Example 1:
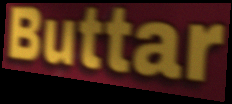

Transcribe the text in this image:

Buttar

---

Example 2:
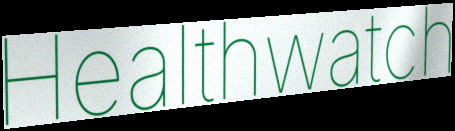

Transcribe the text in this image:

Healthwatch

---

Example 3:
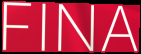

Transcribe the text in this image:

FINA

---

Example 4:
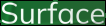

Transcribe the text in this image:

Surface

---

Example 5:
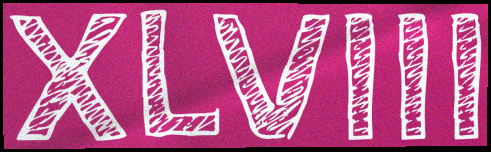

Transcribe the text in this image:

XLVIII